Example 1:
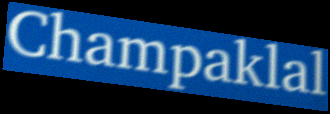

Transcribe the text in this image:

Champaklal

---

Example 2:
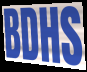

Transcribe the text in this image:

BDHS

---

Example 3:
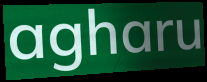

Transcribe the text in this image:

agharu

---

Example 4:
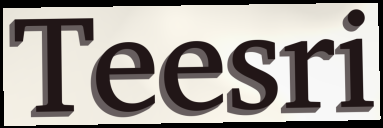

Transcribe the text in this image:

Teesri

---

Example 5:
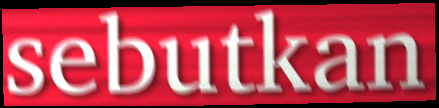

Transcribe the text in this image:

sebutkan